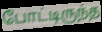
போட்டிருந்த